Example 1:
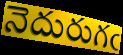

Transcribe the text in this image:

నెదురుగఁ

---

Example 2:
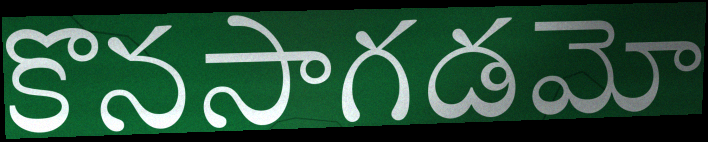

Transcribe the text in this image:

కొనసాగడమో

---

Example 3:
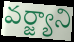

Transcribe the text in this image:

వర్జ్యాని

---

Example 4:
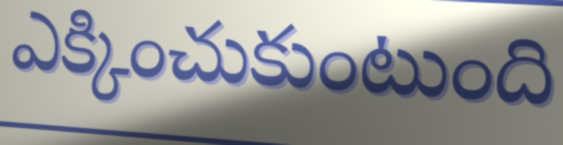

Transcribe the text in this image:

ఎక్కించుకుంటుంది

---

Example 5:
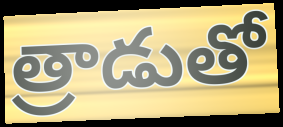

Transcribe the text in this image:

త్రాడుతో